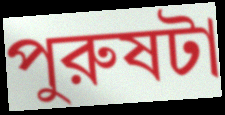
পুরুষটা